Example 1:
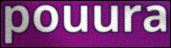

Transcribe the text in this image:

pouura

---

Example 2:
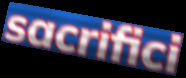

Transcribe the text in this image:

sacrifici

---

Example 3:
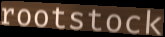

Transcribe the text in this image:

rootstock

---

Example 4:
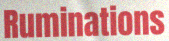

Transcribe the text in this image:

Ruminations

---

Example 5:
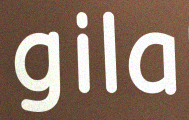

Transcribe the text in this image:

gila